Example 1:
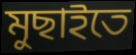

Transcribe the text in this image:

মুছাইতে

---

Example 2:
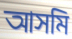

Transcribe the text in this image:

আসমি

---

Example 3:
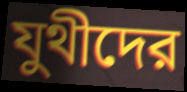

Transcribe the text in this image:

যুথীদের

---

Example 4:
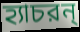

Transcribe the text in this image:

হ্যাচরন্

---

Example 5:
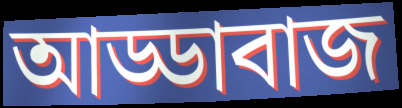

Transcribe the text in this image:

আড্ডাবাজ